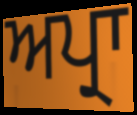
ਅਪ੍ਰਾ